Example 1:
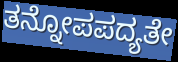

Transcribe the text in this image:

ತನ್ನೋಪಪದ್ಯತೇ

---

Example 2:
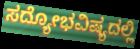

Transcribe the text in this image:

ಸದ್ಯೋಭವಿಷ್ಯದಲ್ಲಿ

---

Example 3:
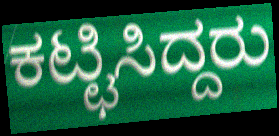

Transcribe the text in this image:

ಕಟ್ಟಿಸಿದ್ದರು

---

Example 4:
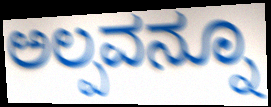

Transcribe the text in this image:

ಅಲ್ಪವನ್ನೂ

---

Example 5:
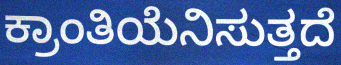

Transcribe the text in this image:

ಕ್ರಾಂತಿಯೆನಿಸುತ್ತದೆ